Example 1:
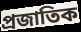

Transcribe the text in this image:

প্ৰজাতিক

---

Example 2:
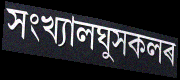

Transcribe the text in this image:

সংখ্যালঘুসকলৰ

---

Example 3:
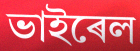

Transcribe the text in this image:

ভাইৰেল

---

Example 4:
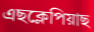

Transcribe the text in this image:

এছক্লেপিয়াছ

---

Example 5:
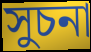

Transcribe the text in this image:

সুচনা